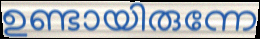
ഉണ്ടായിരുന്നേ